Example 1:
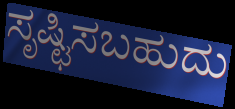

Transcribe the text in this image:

ಸೃಷ್ಟಿಸಬಹುದು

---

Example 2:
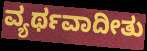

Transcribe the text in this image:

ವ್ಯರ್ಥವಾದೀತು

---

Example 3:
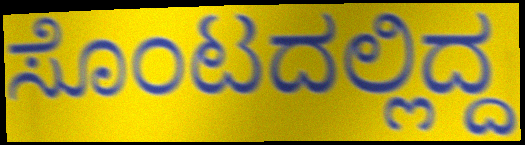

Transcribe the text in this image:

ಸೊಂಟದಲ್ಲಿದ್ದ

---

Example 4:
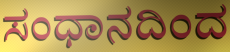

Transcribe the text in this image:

ಸಂಧಾನದಿಂದ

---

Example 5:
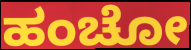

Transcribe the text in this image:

ಹಂಚೋ